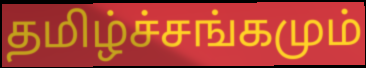
தமிழ்ச்சங்கமும்